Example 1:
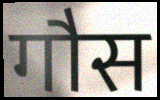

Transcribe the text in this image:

गौस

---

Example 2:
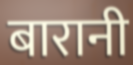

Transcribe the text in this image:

बारानी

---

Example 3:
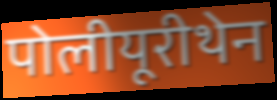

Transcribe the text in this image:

पोलीयूरीथेन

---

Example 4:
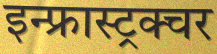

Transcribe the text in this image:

इन्फ्रास्ट्रक्चर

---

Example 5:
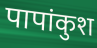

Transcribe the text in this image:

पापांकुश